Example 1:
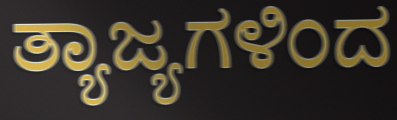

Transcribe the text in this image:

ತ್ಯಾಜ್ಯಗಳಿಂದ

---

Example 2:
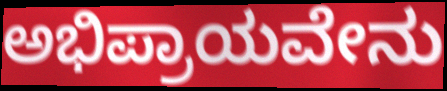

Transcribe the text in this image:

ಅಭಿಪ್ರಾಯವೇನು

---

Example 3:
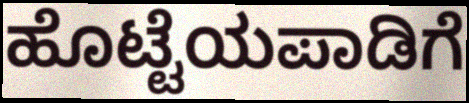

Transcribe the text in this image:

ಹೊಟ್ಟೆಯಪಾಡಿಗೆ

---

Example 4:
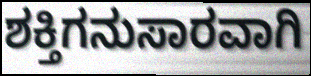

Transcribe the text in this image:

ಶಕ್ತಿಗನುಸಾರವಾಗಿ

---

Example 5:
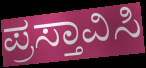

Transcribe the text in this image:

ಪ್ರಸ್ತಾವಿಸಿ